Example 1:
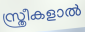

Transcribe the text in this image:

സ്ത്രീകളാൽ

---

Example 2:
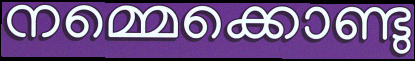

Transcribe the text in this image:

നമ്മെക്കൊണ്ടു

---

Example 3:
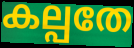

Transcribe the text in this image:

കല്പതേ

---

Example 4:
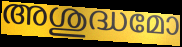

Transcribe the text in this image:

അശുദ്ധമോ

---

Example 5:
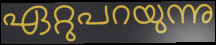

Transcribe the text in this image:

ഏറ്റുപറയുന്നു